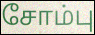
சோம்பு